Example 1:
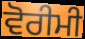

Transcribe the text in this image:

ਵੋਰੀਮੀ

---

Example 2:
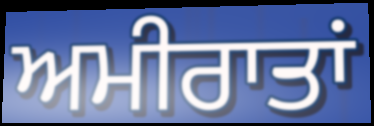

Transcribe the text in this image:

ਅਮੀਰਾਤਾਂ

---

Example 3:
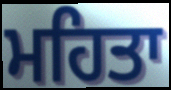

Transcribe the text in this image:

ਮਹਿਤਾ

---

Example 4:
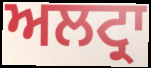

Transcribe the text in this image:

ਅਲਟ੍ਰਾ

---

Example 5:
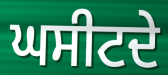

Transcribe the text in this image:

ਘਸੀਟਦੇ